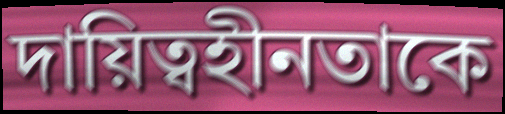
দায়িত্বহীনতাকে